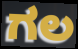
ಗಲ